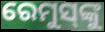
ରେମୁସ୍‌ଙ୍କୁ